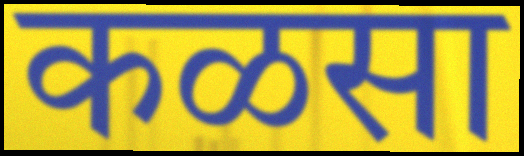
कळसा